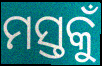
ମସ୍ତକୁଁ